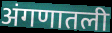
अंगणातली